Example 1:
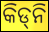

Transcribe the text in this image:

କିଡ୍‌ନି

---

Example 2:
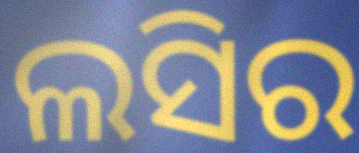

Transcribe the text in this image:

ଲସିର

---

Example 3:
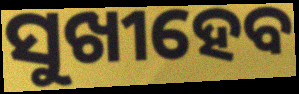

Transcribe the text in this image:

ସୁଖୀହେବ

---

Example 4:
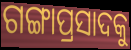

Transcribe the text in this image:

ଗଙ୍ଗାପ୍ରସାଦକୁ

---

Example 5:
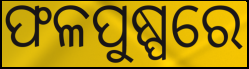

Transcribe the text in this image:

ଫଳପୁଷ୍ପରେ